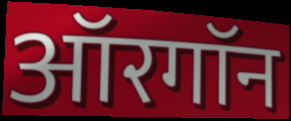
ऑरगॉन